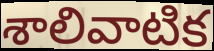
శాలివాటిక